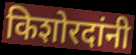
किशोरदांनी